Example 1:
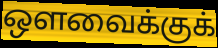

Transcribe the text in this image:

ஔவைக்குக்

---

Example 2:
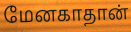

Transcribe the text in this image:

மேனகாதான்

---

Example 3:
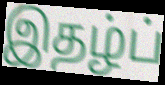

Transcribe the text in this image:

இதழ்ப்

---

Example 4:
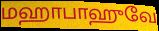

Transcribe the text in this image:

மஹாபாஹுவே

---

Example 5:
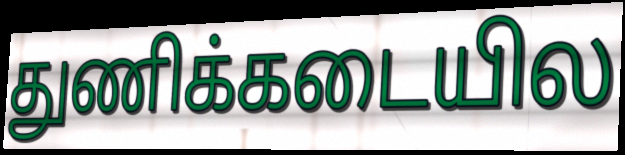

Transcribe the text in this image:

துணிக்கடையில